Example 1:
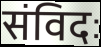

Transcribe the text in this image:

संविदः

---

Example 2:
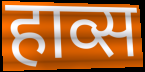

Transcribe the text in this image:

हाव्स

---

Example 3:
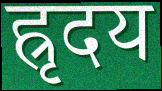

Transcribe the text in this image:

ह्रृदय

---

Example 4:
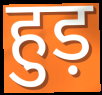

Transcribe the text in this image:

हुड़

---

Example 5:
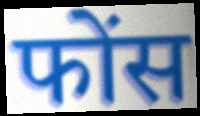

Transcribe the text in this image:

फोंस